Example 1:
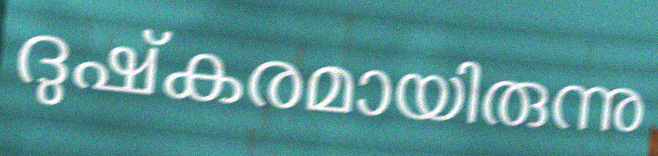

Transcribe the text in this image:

ദുഷ്‌കരമായിരുന്നു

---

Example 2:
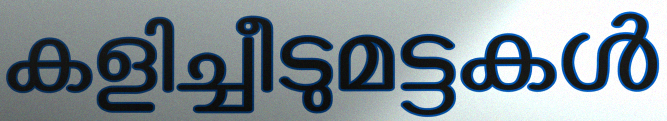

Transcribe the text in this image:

കളിച്ചീടുമട്ടകൾ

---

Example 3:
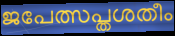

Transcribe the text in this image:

ജപേത്സപ്തശതീം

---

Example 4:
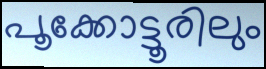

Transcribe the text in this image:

പൂക്കോട്ടൂരിലും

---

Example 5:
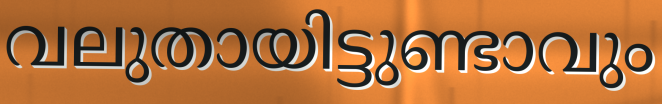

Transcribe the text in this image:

വലുതായിട്ടുണ്ടാവും